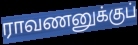
ராவணனுக்குப்